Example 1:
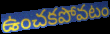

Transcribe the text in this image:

ఉంచకపోవటం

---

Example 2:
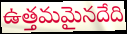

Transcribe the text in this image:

ఉత్తమమైనదేది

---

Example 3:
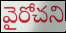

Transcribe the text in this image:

వైరోచని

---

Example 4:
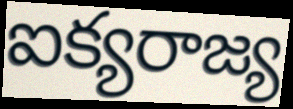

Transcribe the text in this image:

ఐక్యరాజ్య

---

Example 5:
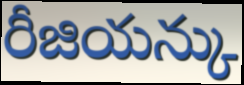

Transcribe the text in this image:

రీజియన్కు